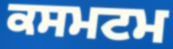
ਕਸਮਟਮ